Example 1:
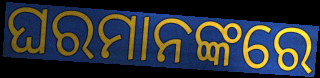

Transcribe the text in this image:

ଘରମାନଙ୍କରେ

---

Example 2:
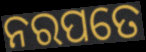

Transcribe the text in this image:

ନରପତେ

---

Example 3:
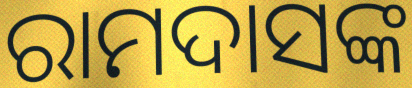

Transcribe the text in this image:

ରାମଦାସଙ୍କ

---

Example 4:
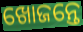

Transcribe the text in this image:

ଖୋଜନ୍ତେ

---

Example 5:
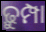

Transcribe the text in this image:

ଢ଼ୁମ୍ପା